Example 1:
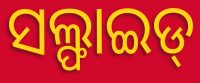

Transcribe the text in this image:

ସଲ୍ଫାଇଡ୍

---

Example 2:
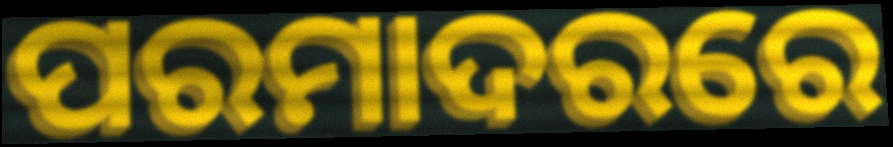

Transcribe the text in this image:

ପରମାଦରରେ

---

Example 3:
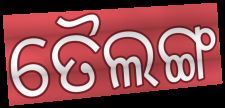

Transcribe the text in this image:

ତୈଲଙ୍ଗ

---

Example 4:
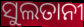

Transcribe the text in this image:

ସୁଲତାନୀ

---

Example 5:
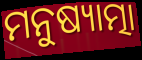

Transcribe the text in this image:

ମନୁଷ୍ୟାତ୍ମା